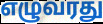
எழுவரது